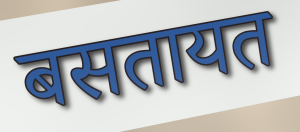
बसतायत